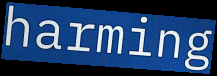
harming